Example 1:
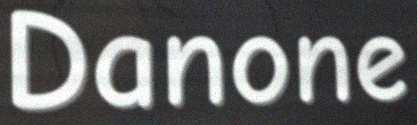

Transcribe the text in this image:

Danone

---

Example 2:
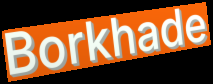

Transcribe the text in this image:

Borkhade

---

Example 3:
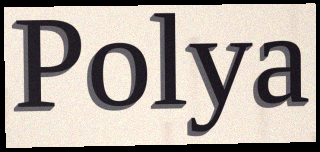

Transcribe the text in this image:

Polya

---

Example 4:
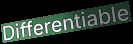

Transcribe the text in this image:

Differentiable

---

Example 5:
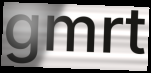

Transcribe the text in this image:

gmrt